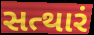
સત્થારં